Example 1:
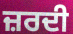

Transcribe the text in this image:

ਜ਼ਰਦੀ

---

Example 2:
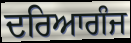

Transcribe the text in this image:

ਦਰਿਆਗੰਜ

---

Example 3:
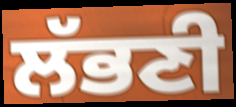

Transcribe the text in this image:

ਲੱਭਣੀ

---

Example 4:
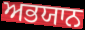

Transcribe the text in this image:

ਅਭਯਾਨ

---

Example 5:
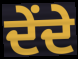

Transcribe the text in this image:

ਦੇਂਦੇ